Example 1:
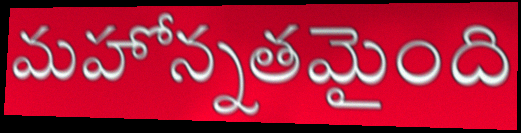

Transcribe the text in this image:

మహోన్నతమైంది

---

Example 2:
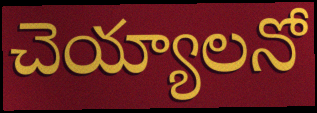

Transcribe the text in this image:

చెయ్యాలనో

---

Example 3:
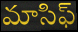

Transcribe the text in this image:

మాసిఫ్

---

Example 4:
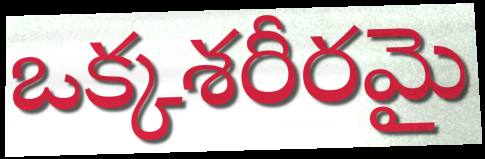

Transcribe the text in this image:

ఒక్కశరీరమై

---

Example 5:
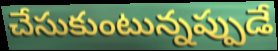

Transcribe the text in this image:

చేసుకుంటున్నప్పుడే